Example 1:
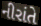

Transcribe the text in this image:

નીરાંતે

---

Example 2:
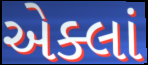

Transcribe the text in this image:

એક્લાં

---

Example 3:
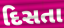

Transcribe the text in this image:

દિસતા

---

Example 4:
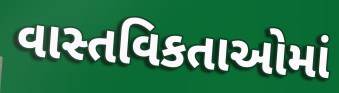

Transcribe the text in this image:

વાસ્તવિકતાઓમાં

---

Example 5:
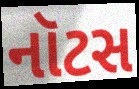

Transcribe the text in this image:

નૉટસ